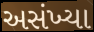
અસંખ્યા